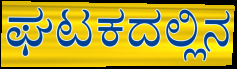
ಘಟಕದಲ್ಲಿನ